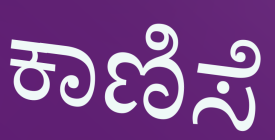
ಕಾಣಿಸೆ